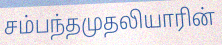
சம்பந்தமுதலியாரின்